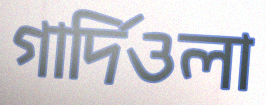
গার্দিওলা